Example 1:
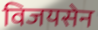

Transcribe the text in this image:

विजयसेन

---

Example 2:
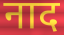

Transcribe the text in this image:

नाद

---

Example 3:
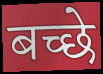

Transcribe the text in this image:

बच्छे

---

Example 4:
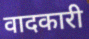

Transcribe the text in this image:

वादकारी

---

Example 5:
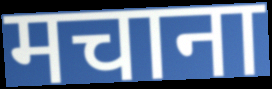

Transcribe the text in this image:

मचाना